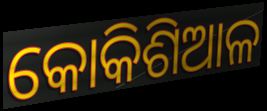
କୋକିଶିଆଳ